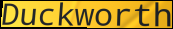
Duckworth